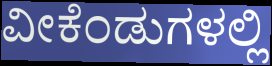
ವೀಕೆಂಡುಗಳಲ್ಲಿ